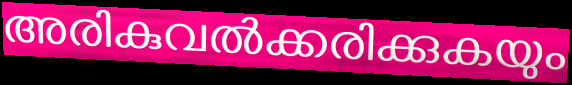
അരികുവൽക്കരിക്കുകയും